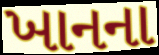
ખાનના